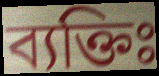
ব্যক্তিঃ